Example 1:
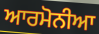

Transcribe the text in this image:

ਆਰਮੋਨੀਆ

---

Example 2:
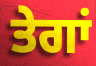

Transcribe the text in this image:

ਤੇਗਾਂ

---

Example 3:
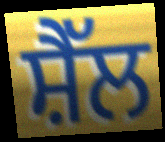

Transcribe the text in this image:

ਸ਼ੈੱਲ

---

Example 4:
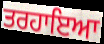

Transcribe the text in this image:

ਤਰਹਾਇਆ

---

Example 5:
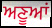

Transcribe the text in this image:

ਅਣੂਆਂ